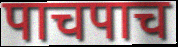
पाचपाच